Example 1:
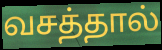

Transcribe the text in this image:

வசத்தால்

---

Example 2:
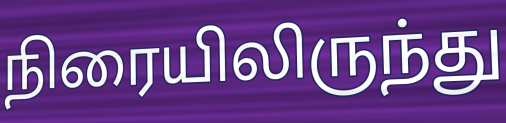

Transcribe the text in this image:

நிரையிலிருந்து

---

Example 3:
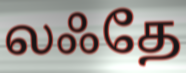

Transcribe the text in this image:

லஃதே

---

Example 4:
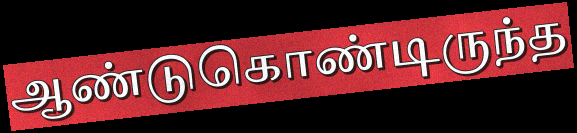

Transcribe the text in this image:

ஆண்டுகொண்டிருந்த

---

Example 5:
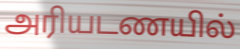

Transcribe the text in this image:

அரியடணயில்